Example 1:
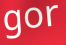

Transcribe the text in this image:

gor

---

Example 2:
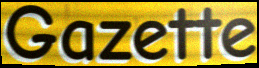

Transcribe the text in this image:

Gazette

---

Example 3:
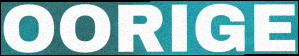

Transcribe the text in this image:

OORIGE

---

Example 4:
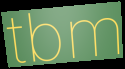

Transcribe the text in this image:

tbm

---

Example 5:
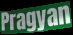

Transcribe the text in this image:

Pragyan